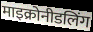
माइक्रोनीडलिंग